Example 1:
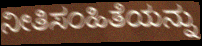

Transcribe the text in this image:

ನೀತಿಸಂಹಿತೆಯನ್ನು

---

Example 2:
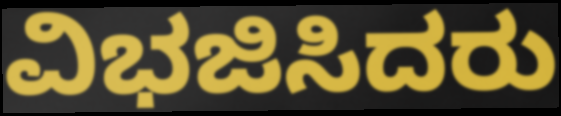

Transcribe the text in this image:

ವಿಭಜಿಸಿದರು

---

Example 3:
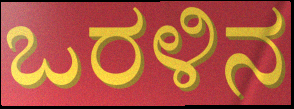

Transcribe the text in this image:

ಒರಳಿನ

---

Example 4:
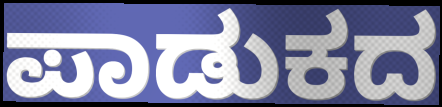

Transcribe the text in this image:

ಪಾಡುಕದ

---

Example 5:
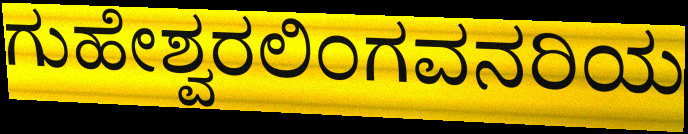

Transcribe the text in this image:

ಗುಹೇಶ್ವರಲಿಂಗವನರಿಯ